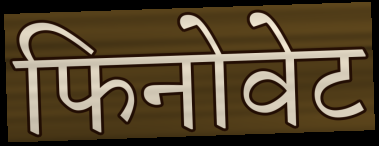
फिनोवेट